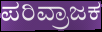
ಪರಿವ್ರಾಜಕ